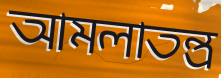
আমলাতন্ত্র